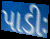
પાડીઃ